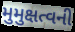
મુમુક્ષત્વની